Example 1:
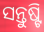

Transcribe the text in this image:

ସନ୍ତୁଷ୍ଟି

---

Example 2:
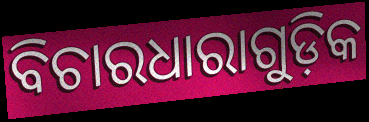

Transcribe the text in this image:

ବିଚାରଧାରାଗୁଡ଼ିକ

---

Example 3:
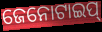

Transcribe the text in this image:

ଜେନୋଟାଇପ୍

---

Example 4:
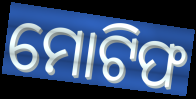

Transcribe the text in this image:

ମୋଟିଫ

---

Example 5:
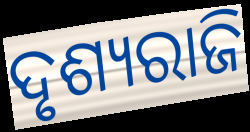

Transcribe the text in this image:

ଦୃଶ୍ୟରାଜି